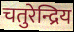
चतुरेन्द्रिय